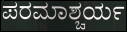
ಪರಮಾಶ್ಚರ್ಯ